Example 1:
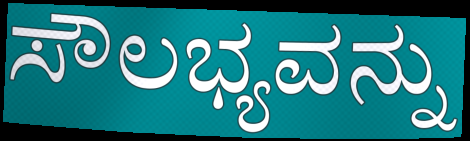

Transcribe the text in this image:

ಸೌಲಭ್ಯವನ್ನು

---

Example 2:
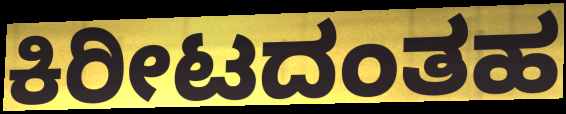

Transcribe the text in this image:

ಕಿರೀಟದಂತಹ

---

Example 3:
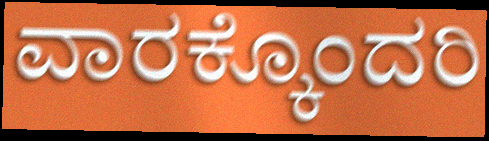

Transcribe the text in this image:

ವಾರಕ್ಕೊಂದರಿ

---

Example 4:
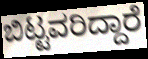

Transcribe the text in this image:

ಬಿಟ್ಟವರಿದ್ದಾರೆ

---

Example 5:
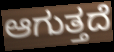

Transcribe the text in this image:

ಆಗುತ್ತದೆ